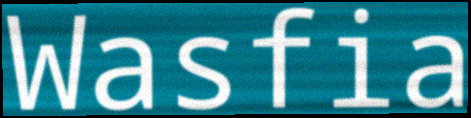
Wasfia